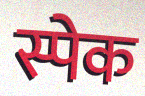
स्पेक